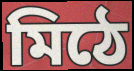
মিঠে